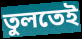
তুলতেই